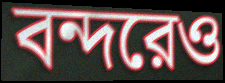
বন্দরেও